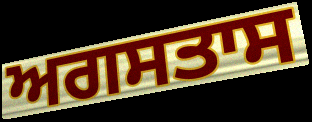
ਅਗਸਤਾਸ